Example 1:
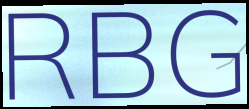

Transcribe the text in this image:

RBG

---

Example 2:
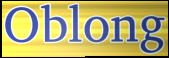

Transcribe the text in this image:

Oblong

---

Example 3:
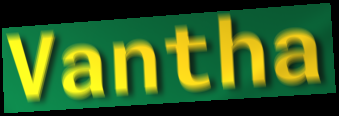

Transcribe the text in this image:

Vantha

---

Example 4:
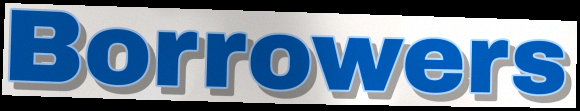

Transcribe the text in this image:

Borrowers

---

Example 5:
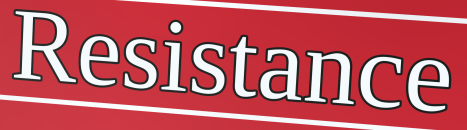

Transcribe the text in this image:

Resistance